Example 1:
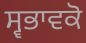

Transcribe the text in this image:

ਸ੍ਵਭਾਵਕੋ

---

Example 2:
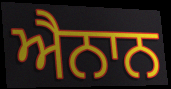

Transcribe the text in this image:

ਐਨਾਨ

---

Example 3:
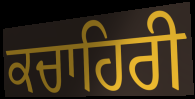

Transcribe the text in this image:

ਕਚਾਹਿਰੀ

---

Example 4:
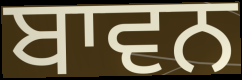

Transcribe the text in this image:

ਬਾਵਨ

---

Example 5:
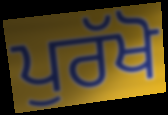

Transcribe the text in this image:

ਪੁਰੱਖੋ